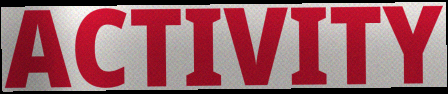
ACTIVITY